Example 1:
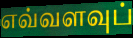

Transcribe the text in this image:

எவ்வளவுப்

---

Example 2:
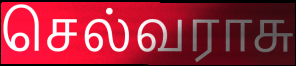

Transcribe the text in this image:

செல்வராசு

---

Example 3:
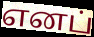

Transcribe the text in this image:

எனப்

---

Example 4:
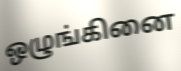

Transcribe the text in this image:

ஒழுங்கினை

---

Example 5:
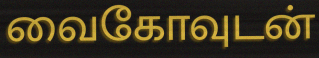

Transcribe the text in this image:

வைகோவுடன்